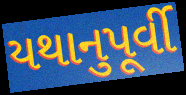
યથાનુપૂર્વી